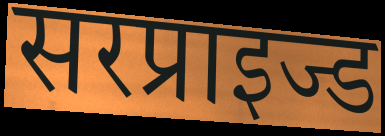
सरप्राइज्ड